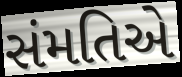
સંમતિએ